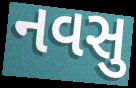
નવસુ